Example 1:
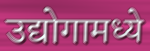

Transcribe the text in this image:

उद्योगामध्ये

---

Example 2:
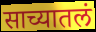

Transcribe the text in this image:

साच्यातलं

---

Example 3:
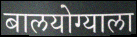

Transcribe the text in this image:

बालयोग्याला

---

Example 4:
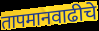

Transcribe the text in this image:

तापमानवाढीचे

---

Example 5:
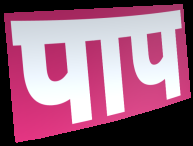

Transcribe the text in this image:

पाप